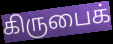
கிருபைக்